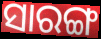
ସାରଙ୍ଗ